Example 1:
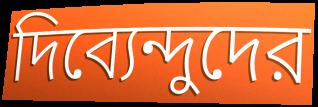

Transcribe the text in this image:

দিব্যেন্দুদের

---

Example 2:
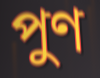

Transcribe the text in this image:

পুণ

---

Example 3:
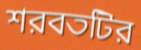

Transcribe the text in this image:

শরবতটির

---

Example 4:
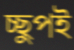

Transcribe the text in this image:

চ্ছুপই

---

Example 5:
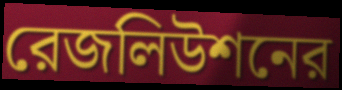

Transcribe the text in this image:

রেজলিউশনের